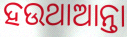
ହଉଥାଆନ୍ତା